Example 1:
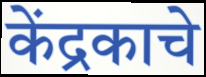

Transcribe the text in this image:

केंद्रकाचे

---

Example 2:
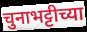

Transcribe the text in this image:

चुनाभट्टीच्या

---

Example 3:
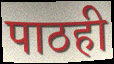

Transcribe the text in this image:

पाठही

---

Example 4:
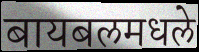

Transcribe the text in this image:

बायबलमधले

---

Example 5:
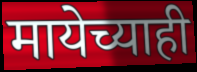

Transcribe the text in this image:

मायेच्याही